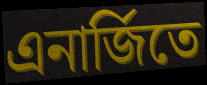
এনার্জিতে